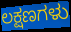
ಲಕ್ಷಣಗಳು